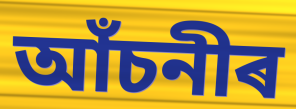
আঁচনীৰ